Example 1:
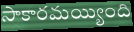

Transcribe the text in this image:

సాకారమయ్యింది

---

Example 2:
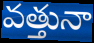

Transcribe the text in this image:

వత్తునా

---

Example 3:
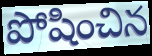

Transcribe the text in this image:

పోషించిన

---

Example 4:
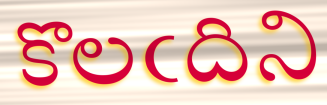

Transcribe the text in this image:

కొలఁదిని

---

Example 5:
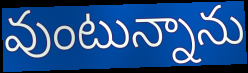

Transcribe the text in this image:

వుంటున్నాను